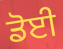
ਡੋਈ